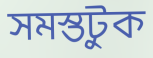
সমস্তটুক